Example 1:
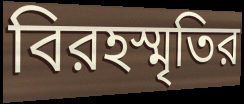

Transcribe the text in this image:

বিরহস্মৃতির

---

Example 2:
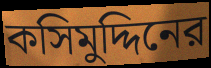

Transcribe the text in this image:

কসিমুদ্দিনের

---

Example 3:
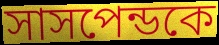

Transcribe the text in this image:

সাসপেন্ডকে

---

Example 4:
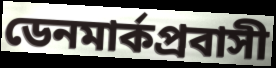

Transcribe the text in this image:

ডেনমার্কপ্রবাসী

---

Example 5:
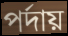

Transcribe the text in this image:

পর্দায়